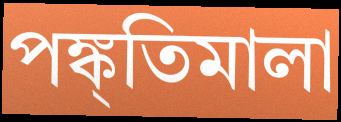
পঙ্ক্তিমালা